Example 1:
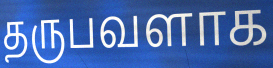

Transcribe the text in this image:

தருபவளாக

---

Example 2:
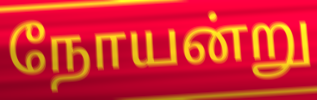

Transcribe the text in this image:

நோயன்று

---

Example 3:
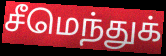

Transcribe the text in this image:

சீமெந்துக்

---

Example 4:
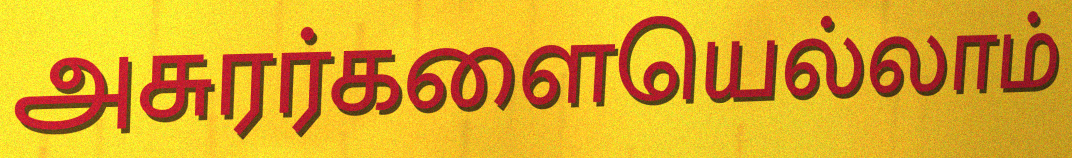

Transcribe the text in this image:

அசுரர்களையெல்லாம்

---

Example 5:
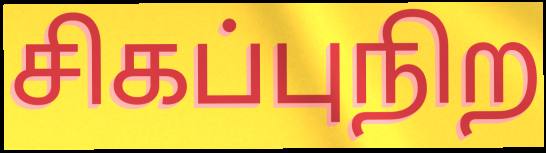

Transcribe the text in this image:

சிகப்புநிற